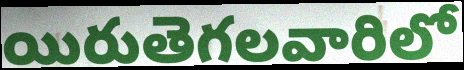
యిరుతెగలవారిలో